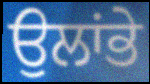
ਉਲਾਂਭੇ